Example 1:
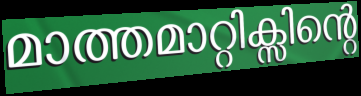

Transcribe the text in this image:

മാത്തമാറ്റിക്സിന്റെ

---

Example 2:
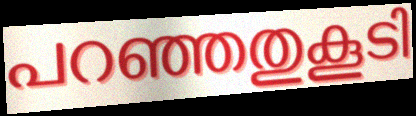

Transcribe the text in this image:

പറഞ്ഞതുകൂടി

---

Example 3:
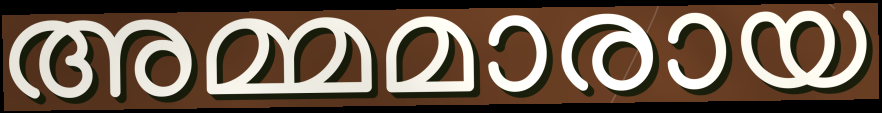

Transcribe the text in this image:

അമ്മമാരായ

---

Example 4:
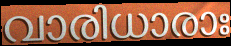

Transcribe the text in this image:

വാരിധാരാഃ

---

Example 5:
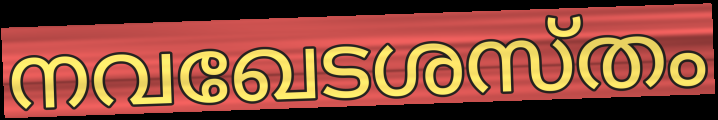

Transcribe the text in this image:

നവഖേടശസ്തം